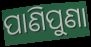
ପାଣିପୁଣା